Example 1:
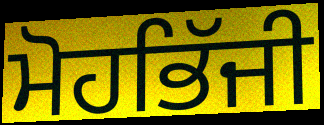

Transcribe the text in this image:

ਮੋਹਭਿੱਜੀ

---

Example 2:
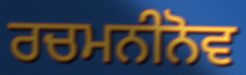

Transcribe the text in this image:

ਰਚਮਨੀਨੋਵ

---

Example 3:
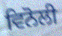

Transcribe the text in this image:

ਵਿਨੋਲੀ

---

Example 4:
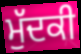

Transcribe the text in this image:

ਮੁੱਦਕੀ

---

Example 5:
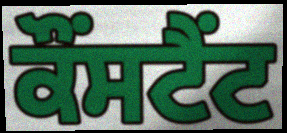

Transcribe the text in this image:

ਕੌਂਸਟੈਂਟ